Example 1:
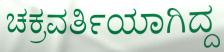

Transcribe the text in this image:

ಚಕ್ರವರ್ತಿಯಾಗಿದ್ದ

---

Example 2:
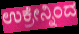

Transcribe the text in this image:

ಉಕ್ರೇನ್ನಿಂದ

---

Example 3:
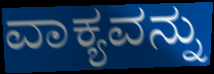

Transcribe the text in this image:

ವಾಕ್ಯವನ್ನು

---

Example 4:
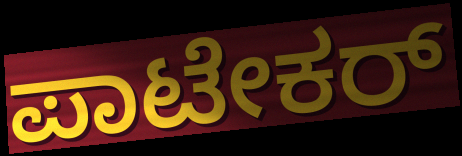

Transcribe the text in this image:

ಪಾಟೇಕರ್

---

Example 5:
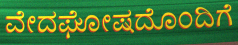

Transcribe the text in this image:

ವೇದಘೋಷದೊಂದಿಗೆ